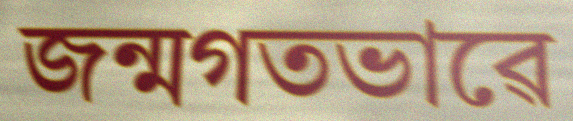
জন্মগতভাৱে